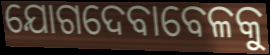
ଯୋଗଦେବାବେଳକୁ